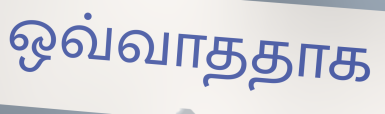
ஒவ்வாததாக